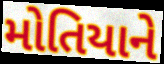
મોતિયાને